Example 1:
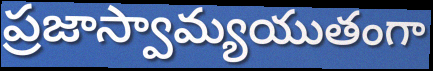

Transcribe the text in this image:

ప్రజాస్వామ్యయుతంగా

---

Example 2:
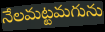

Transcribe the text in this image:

నేలమట్టమగును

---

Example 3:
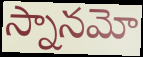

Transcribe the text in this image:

స్నానమో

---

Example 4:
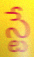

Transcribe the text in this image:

స్టే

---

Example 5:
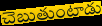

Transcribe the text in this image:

చెబుతుంటాడు